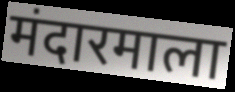
मंदारमाला